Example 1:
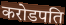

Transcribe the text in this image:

करोडपति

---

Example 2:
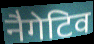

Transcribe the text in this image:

नैगेटिव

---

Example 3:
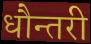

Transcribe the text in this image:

धौन्तरी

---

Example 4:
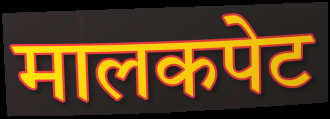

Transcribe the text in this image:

मालकपेट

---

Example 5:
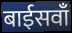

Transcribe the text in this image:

बाईसवाँ